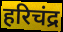
हरिचंद्र